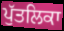
ਪੁੱਤਲਿਕਾ